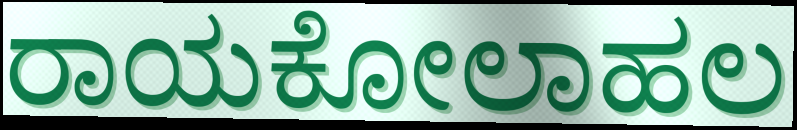
ರಾಯಕೋಲಾಹಲ